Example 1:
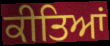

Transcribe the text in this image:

ਕੀਤਿਆਂ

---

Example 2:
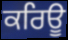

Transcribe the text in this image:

ਕਰਿਊ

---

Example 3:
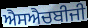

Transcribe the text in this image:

ਐਸਐਚਬੀਜੀ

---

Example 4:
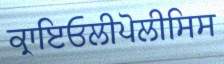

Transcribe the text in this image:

ਕ੍ਰਾਇਓਲੀਪੋਲੀਸਿਸ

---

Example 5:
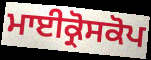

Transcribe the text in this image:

ਮਾਈਕ੍ਰੋਸਕੋਪ